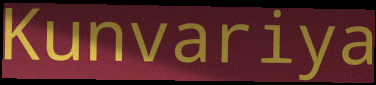
Kunvariya